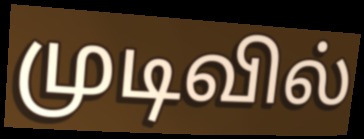
முடிவில்